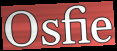
Osfie